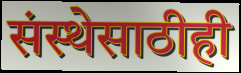
संस्थेसाठीही